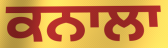
ਕਨਾਲਾ